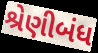
શ્રેણીબંધ